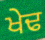
ਖੇਢ